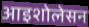
आइशोलेसन